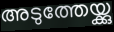
അടുത്തേയ്ക്കു